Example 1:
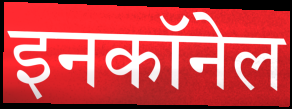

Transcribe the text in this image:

इनकॉनेल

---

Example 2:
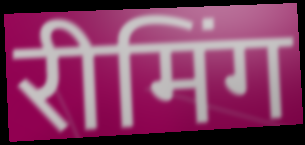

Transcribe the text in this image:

रीमिंग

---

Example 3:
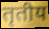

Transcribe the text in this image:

तृतीय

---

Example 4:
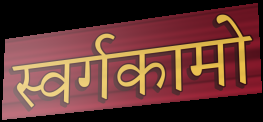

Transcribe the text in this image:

स्वर्गकामो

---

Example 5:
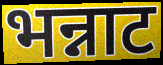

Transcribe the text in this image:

भन्नाट